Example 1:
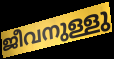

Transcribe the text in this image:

ജീവനുള്ളു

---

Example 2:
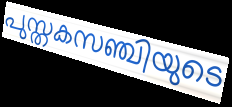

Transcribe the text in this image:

പുസ്തകസഞ്ചിയുടെ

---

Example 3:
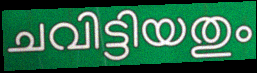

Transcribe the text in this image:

ചവിട്ടിയതും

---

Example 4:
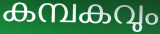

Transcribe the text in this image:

കമ്പകവും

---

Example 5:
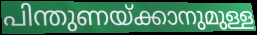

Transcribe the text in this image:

പിന്തുണയ്ക്കാനുമുള്ള